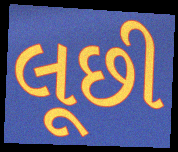
લૂછી